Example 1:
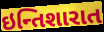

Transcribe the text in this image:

ઇન્તિશારાત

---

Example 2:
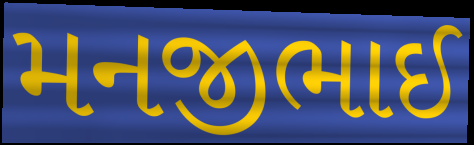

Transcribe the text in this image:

મનજીભાઈ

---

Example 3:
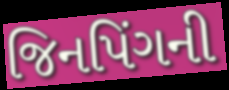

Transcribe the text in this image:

જિનપિંગની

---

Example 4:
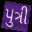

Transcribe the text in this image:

પુત્રી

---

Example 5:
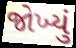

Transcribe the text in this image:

જોખ્યું